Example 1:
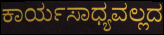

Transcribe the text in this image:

ಕಾರ್ಯಸಾಧ್ಯವಲ್ಲದ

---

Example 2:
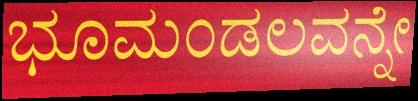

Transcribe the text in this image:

ಭೂಮಂಡಲವನ್ನೇ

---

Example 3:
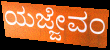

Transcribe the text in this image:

ಯಜ್ಜೇವಂ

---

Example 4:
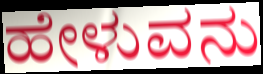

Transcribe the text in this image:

ಹೇಳುವನು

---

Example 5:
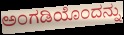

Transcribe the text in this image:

ಅಂಗಡಿಯೊಂದನ್ನು